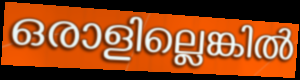
ഒരാളില്ലെങ്കിൽ